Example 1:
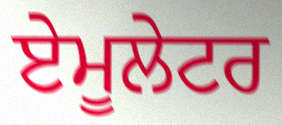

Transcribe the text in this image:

ਏਮੂਲੇਟਰ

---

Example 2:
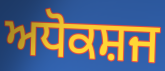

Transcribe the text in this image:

ਅਧੋਕਸ਼ਜ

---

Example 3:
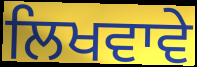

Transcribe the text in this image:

ਲਿਖਵਾਵੇ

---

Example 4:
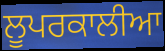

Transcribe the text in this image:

ਲੂਪਰਕਾਲੀਆ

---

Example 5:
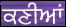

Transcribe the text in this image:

ਕਣੀਆਂ